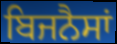
ਬਿਜਨੈਸਾਂ